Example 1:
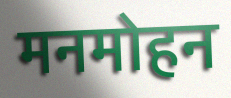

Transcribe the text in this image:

मनमोहन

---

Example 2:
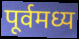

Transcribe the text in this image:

पूर्वमध्य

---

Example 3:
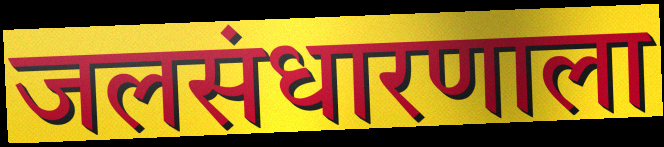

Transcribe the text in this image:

जलसंधारणाला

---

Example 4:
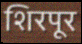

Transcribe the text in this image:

शिरपूर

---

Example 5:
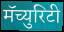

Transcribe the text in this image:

मॅच्युरिटी